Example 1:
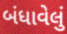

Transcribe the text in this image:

બંધાવેલું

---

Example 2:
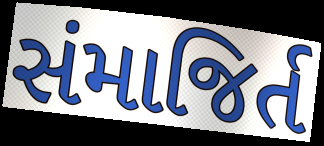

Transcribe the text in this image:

સંમાજિર્ત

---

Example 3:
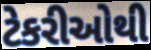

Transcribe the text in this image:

ટેકરીઓથી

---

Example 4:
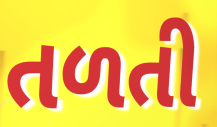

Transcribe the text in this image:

તળતી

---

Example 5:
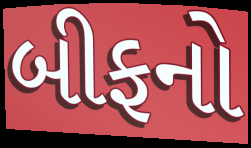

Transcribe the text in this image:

બીફનો